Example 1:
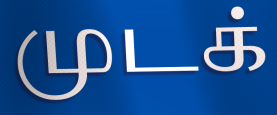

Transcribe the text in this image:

முடக்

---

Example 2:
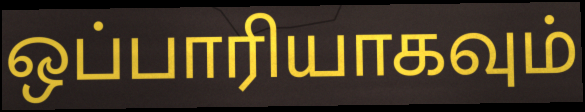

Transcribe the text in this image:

ஒப்பாரியாகவும்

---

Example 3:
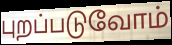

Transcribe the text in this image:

புறப்படுவோம்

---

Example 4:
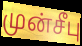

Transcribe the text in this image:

முன்சீபு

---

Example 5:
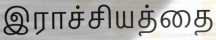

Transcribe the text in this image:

இராச்சியத்தை